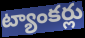
ట్యాంకర్లు